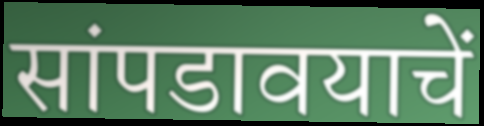
सांपडावयाचें